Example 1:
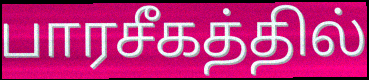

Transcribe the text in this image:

பாரசீகத்தில்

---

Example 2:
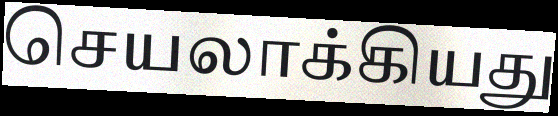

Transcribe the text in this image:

செயலாக்கியது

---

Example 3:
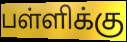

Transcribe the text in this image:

பள்ளிக்கு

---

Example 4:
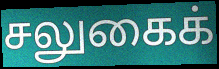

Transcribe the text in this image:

சலுகைக்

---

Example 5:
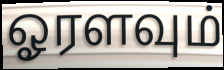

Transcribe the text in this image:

ஓரளவும்